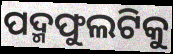
ପଦ୍ମଫୁଲଟିକୁ